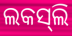
ଲକସ୍‍ଲି